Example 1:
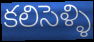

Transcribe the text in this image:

కలిసెళ్ళి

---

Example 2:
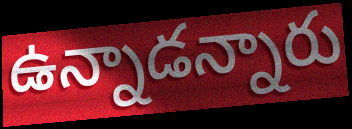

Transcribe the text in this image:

ఉన్నాడన్నారు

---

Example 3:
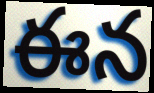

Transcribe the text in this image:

ఈన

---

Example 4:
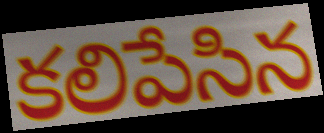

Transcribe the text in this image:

కలిపేసిన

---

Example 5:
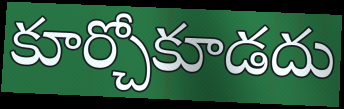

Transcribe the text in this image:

కూర్చోకూడదు